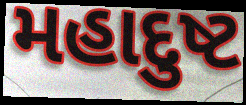
મહાદુષ્ટ